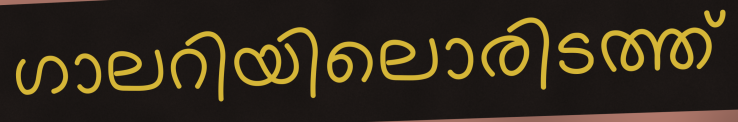
ഗാലറിയിലൊരിടത്ത്